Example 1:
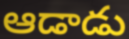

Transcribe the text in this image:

ఆడాడు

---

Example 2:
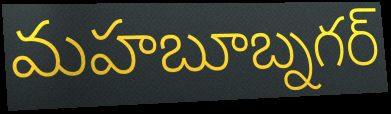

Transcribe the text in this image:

మహబూబ్నగర్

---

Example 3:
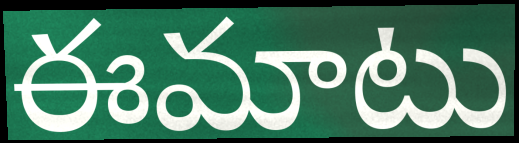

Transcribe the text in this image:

ఈమాటు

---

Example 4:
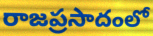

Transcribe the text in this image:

రాజప్రసాదంలో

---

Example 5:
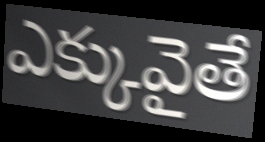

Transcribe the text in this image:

ఎక్కువైతే